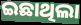
ଇଛାଥିଲା